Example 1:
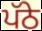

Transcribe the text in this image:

ਪੱਠੇ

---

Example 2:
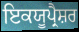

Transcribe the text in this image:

ਇਕਯੂਪ੍ਰੈਸ਼ਰ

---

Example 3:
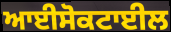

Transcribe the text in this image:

ਆਈਸੋਕਟਾਈਲ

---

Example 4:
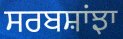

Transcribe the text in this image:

ਸਰਬਸ਼ਾਂਝਾ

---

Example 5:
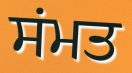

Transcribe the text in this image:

ਸਂਮਤ